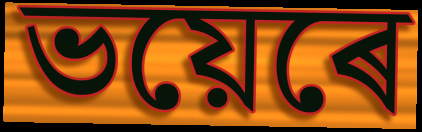
ভয়েৰে